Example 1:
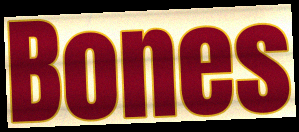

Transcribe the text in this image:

Bones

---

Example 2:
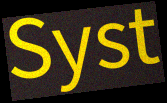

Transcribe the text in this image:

Syst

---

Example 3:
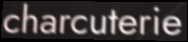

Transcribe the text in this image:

charcuterie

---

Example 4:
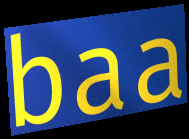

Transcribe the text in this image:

baa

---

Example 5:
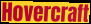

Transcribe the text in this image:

Hovercraft